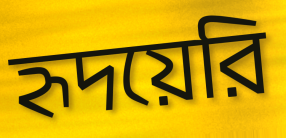
হৃদয়েরি